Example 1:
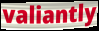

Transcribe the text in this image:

valiantly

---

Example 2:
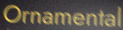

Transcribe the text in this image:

Ornamental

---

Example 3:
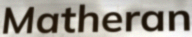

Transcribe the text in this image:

Matheran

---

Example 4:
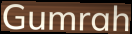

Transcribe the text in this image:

Gumrah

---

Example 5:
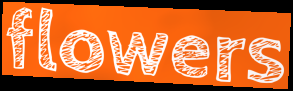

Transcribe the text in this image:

flowers